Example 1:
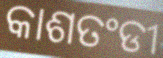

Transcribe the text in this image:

କାଶତଂଡୀ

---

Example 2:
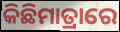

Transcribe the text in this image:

କିଛିମାତ୍ରାରେ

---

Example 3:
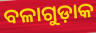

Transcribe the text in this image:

ବଳାଗୁଡ଼ାକ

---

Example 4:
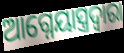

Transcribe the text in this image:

ଆଗ୍ନେୟାସ୍ତ୍ରଦ୍ୱାରା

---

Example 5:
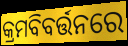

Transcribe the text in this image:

କ୍ରମବିବର୍ତ୍ତନରେ